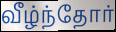
வீழ்ந்தோர்